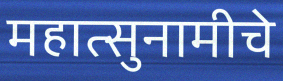
महात्सुनामीचे